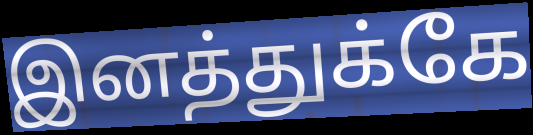
இனத்துக்கே